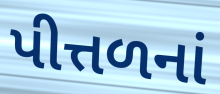
પીત્તળનાં